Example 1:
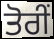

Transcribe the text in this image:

ਤੋਰੀਂ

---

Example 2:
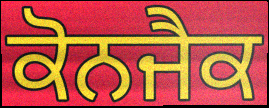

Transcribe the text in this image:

ਕੋਨਜੈਕ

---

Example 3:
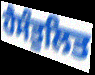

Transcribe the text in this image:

ਹੈਸੰਤੁਲਿਤ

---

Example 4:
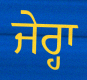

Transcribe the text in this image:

ਜੇਰ੍ਹਾ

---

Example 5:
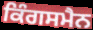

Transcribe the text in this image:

ਕਿੰਗਸਮੈਨ